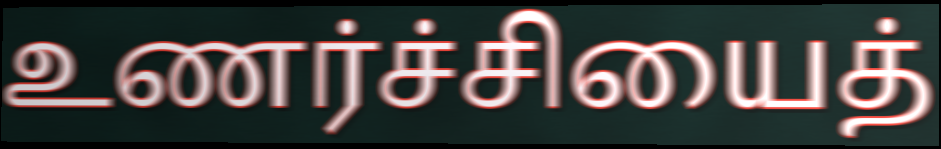
உணர்ச்சியைத்